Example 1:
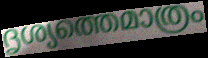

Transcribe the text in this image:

ദൃശ്യത്തെമാത്രം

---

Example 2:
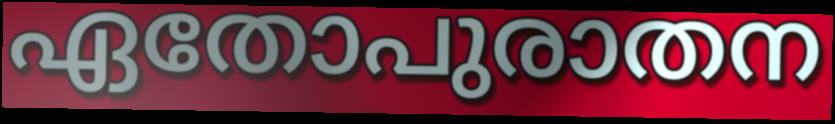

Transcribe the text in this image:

ഏതോപുരാതന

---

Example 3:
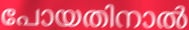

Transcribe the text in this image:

പോയതിനാൽ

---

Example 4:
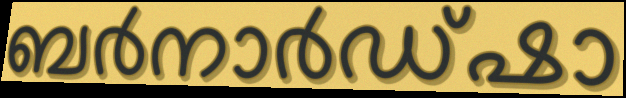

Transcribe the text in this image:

ബർനാർഡ്ഷാ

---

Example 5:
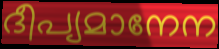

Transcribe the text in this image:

ദീപ്യമാനേന